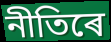
নীতিৰে